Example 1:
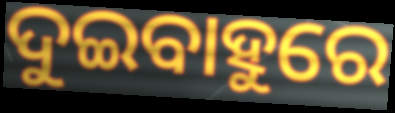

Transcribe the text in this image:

ଦୁଇବାହୁରେ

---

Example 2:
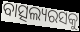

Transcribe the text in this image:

ବାତ୍ସଲ୍ୟରସକୁ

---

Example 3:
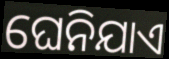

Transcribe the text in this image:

ଘେନିଯାଏ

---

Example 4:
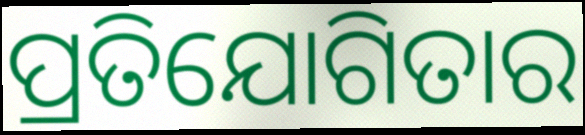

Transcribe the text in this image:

ପ୍ରତିଯୋଗିତାର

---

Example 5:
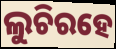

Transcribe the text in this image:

ଲୁଚିରହେ